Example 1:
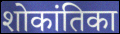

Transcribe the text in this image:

शोकांतिका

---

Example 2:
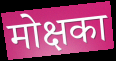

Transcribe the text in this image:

मोक्षका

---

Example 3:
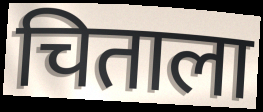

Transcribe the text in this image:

चिताला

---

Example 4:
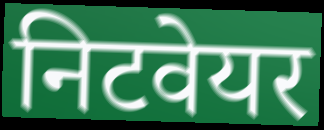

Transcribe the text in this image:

निटवेयर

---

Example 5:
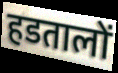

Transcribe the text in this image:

हडतालों